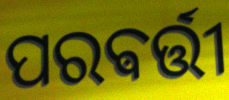
ପରଵର୍ତ୍ତୀ